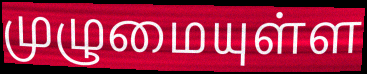
முழுமையுள்ள